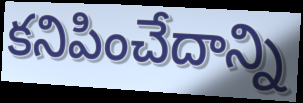
కనిపించేదాన్ని